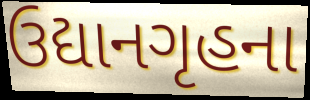
ઉદ્યાનગૃહના